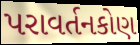
પરાવર્તનકોણ